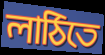
লাঠিতে